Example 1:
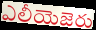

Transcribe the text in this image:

ఎలీయెజెరు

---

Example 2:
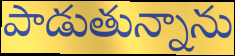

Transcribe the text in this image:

పాడుతున్నాను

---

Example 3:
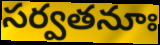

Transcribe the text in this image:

సర్వతనూః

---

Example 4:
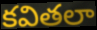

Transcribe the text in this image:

కవితలా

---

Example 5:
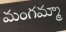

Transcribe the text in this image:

మంగమ్మా